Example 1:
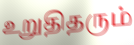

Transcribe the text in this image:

உறுதிதரும்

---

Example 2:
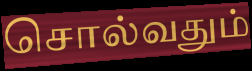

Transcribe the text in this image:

சொல்வதும்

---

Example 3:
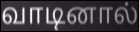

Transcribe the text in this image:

வாடினால்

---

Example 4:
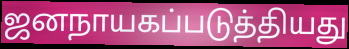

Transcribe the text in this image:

ஜனநாயகப்படுத்தியது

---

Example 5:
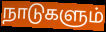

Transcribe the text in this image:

நாடுகளும்